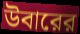
উবারের